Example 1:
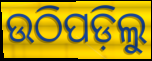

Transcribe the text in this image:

ଉଠିପଡ଼ିଲୁ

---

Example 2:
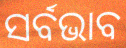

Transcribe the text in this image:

ସର୍ବଭାବ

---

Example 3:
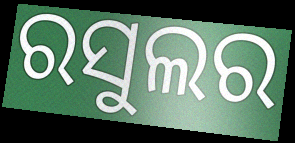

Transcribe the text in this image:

ରସୁଲର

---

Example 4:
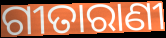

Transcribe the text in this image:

ଗୀତାରାଣୀ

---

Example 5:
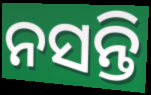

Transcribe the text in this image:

ନସନ୍ତି